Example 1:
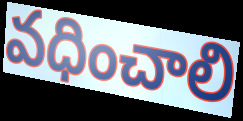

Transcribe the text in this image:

వధించాలి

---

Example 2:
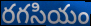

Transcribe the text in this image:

రగసియం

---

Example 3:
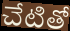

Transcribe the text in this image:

చేటితో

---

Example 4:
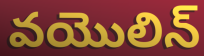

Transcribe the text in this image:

వయొలిన్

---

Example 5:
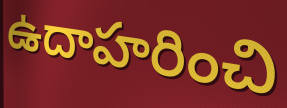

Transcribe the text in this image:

ఉదాహరించి